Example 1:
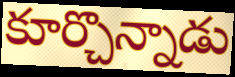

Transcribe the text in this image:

కూర్చొన్నాడు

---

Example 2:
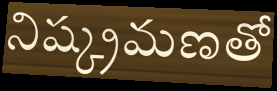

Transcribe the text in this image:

నిష్క్రమణతో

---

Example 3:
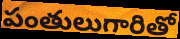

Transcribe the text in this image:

పంతులుగారితో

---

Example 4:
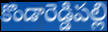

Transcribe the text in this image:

కొండారెడ్డిపల్లి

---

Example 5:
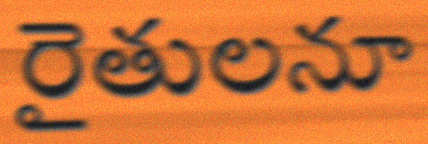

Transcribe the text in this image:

రైతులనూ